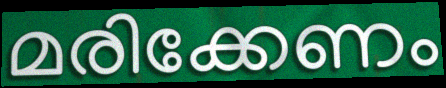
മരിക്കേണം